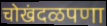
चोखंदळपणा